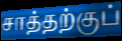
சாத்தற்குப்